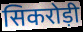
सिकरोड़ी